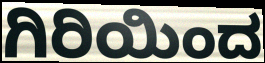
ಗಿರಿಯಿಂದ